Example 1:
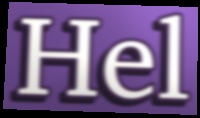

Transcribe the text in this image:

Hel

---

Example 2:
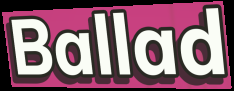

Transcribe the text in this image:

Ballad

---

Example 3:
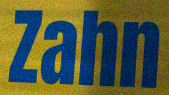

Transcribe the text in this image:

Zahn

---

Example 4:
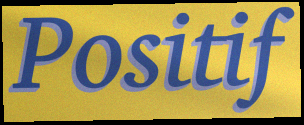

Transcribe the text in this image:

Positif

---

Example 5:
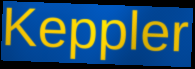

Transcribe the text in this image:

Keppler